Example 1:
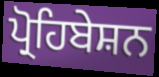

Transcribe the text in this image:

ਪ੍ਰੋਹਿਬੇਸ਼ਨ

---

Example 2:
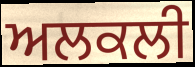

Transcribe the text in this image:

ਅਲਕਲੀ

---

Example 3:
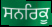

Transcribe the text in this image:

ਸਨਰਿਕੂ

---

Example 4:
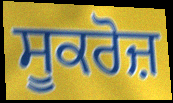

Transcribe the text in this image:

ਸੂਕਰੋਜ਼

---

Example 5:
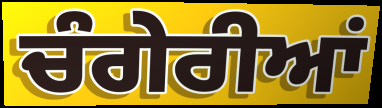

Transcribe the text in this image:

ਚੰਗੇਰੀਆਂ